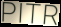
PITR